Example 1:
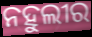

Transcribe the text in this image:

ନହୁଲୀର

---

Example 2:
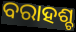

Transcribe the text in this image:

ବରାହଶ୍ଚ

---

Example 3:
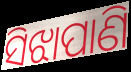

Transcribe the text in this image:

ସିଝାପାଣି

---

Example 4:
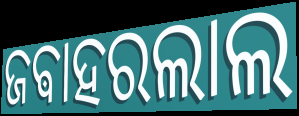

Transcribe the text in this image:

ଜଵାହରଲାଲ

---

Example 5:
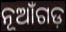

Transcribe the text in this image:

ନୂଆଁଗଡ଼